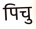
पिचु